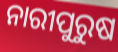
ନାରୀପୁରୁଷ